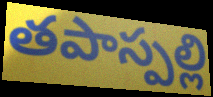
తపాస్పల్లి